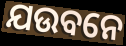
ଯଉବନେ